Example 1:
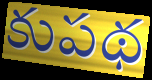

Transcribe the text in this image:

కుపథ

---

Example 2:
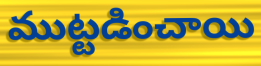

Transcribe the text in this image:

ముట్టడించాయి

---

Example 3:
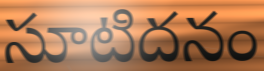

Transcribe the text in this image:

సూటిదనం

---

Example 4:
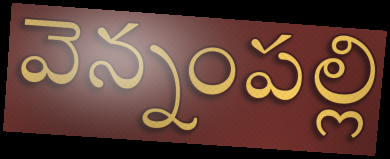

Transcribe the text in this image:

వెన్నంపల్లి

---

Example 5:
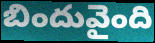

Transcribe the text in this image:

బిందువైంది